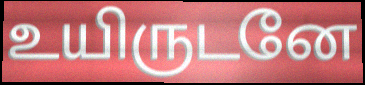
உயிருடனே